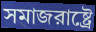
সমাজরাষ্ট্রে